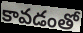
కావడంతో